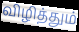
விழித்தும்